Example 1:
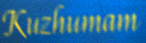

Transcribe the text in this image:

Kuzhumam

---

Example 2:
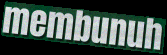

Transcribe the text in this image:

membunuh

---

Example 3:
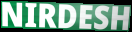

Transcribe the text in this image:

NIRDESH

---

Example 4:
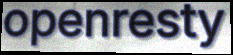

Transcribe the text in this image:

openresty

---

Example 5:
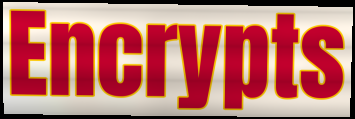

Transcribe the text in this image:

Encrypts